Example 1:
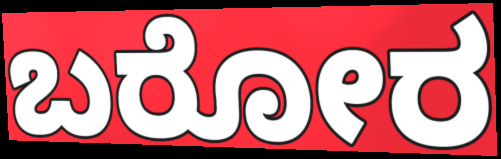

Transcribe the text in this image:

ಬರೋರ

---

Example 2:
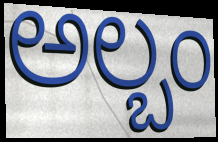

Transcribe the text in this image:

ಅಲ್ಬಂ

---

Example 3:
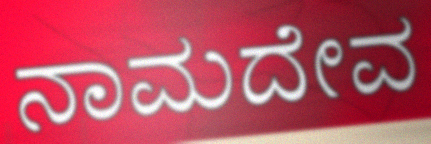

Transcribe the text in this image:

ನಾಮದೇವ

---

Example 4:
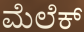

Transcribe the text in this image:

ಮೆಲೆಕ್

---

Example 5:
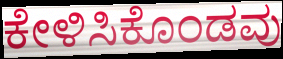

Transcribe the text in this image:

ಕೇಳಿಸಿಕೊಂಡವು